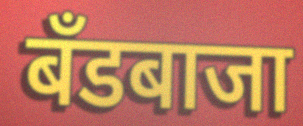
बँडबाजा